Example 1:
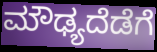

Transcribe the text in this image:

ಮೌಢ್ಯದೆಡೆಗೆ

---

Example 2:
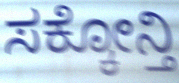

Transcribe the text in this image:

ಸಕ್ಕೋನ್ತಿ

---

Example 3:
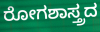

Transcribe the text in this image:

ರೋಗಶಾಸ್ತ್ರದ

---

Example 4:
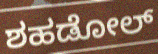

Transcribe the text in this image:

ಶಹಡೋಲ್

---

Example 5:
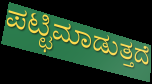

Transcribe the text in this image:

ಪಟ್ಟಿಮಾಡುತ್ತದೆ